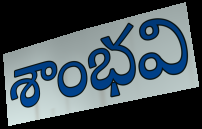
శాంభవి